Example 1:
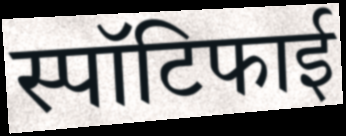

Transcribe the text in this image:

स्पॉटिफाई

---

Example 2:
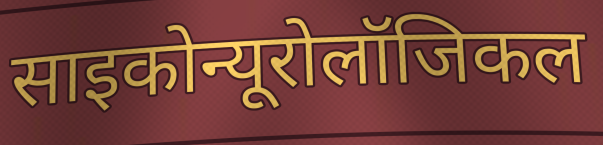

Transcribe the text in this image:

साइकोन्यूरोलॉजिकल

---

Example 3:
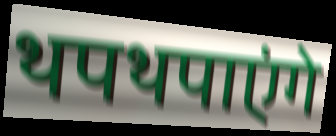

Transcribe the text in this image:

थपथपाएंगे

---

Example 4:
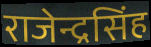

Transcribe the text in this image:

राजेन्द्रसिंह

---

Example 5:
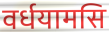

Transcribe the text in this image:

वर्धयामसि